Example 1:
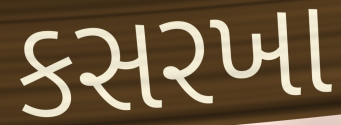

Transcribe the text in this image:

કસરખા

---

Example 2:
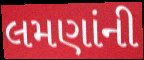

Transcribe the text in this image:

લમણાંની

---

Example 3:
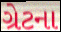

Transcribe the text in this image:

ગ્રેટના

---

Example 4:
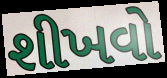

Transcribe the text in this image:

શીખવો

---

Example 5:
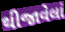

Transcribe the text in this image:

થીજાવેલાં